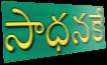
సాధనకే